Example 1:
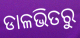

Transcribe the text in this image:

ଡାଳଭିତରୁ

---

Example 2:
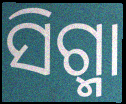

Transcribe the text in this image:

ସିଗ୍ମା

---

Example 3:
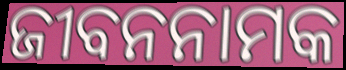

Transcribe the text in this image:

ଜୀବନନାମକ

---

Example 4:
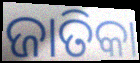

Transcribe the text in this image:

ଜାତିକା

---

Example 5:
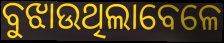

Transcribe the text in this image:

ବୁଝାଉଥିଲାବେଳେ